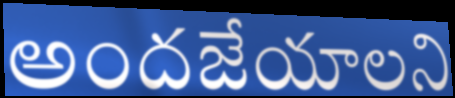
అందజేయాలని